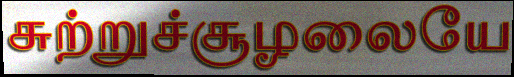
சுற்றுச்சூழலையே